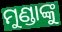
ମୁଣ୍ଡାଙ୍କୁ